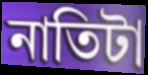
নাতিটা